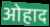
ओहाद